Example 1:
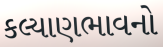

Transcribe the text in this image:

કલ્યાણભાવનો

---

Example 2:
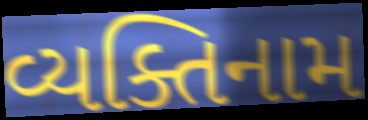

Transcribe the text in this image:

વ્યક્તિનામ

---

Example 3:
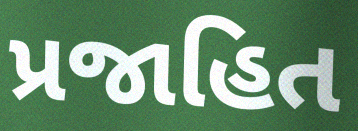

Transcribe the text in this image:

પ્રજાહિત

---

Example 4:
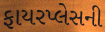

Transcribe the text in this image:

ફાયરપ્લેસની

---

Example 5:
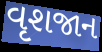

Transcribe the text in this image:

વૃશજાન